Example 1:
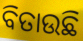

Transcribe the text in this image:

ବିତାଉଛି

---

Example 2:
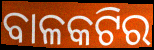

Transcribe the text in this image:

ବାଳକଟିର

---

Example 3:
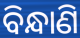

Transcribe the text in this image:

ବିନ୍ଧାଣି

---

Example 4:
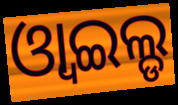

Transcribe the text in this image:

ଓ୍ବାଇଲ୍ଡ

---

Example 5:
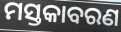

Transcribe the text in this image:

ମସ୍ତକାବରଣ